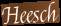
Heesch